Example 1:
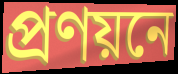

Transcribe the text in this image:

প্রণয়নে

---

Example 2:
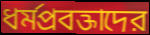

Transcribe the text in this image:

ধর্মপ্রবক্তাদের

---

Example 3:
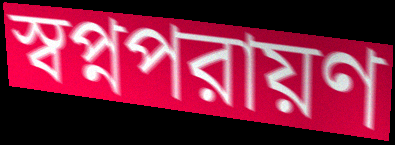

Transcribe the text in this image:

স্বপ্নপরায়ণ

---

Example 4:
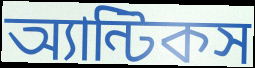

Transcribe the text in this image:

অ্যান্টিকস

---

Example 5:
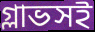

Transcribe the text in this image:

গ্লাভসই